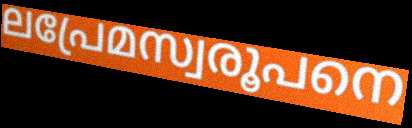
ലപ്രേമസ്വരൂപനെ